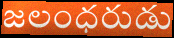
జలంధరుడు